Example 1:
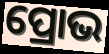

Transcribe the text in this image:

ପ୍ରୋଭ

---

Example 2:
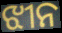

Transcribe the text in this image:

ଝୀନ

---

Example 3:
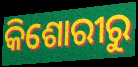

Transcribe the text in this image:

କିଶୋରୀରୁ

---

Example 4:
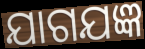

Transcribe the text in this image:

ଯାଗଯଜ୍ଞ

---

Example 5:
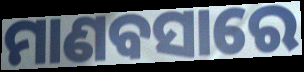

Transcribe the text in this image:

ମାଣବସାରେ